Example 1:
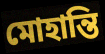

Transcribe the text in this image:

মোহান্তি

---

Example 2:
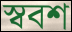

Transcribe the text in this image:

স্ববশ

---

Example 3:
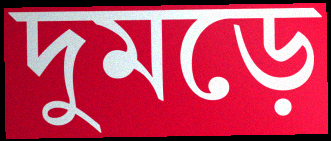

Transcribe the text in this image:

দুমড়ে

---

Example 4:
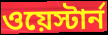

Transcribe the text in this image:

ওয়েস্টার্ন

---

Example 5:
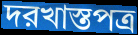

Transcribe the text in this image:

দরখাস্তপত্র